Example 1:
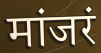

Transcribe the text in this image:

मांजरं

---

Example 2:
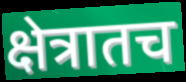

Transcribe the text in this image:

क्षेत्रातच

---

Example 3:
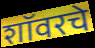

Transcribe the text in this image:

शॉवरचे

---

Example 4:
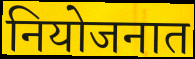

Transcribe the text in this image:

नियोजनात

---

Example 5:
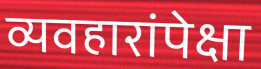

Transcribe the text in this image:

व्यवहारांपेक्षा